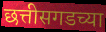
छत्तीसगडच्या